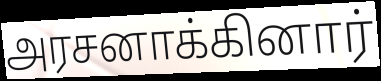
அரசனாக்கினார்